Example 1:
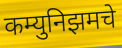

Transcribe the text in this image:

कम्युनिझमचे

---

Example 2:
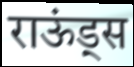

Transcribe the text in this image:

राऊंड्स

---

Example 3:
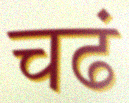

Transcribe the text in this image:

चढं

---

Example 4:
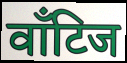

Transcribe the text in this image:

वाँटिज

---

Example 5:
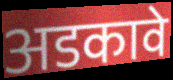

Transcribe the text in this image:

अडकावे